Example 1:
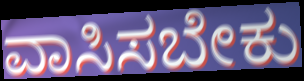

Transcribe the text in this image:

ವಾಸಿಸಬೇಕು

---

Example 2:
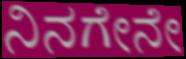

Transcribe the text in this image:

ನಿನಗೇನೇ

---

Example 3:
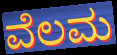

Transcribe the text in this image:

ವೆಲಮ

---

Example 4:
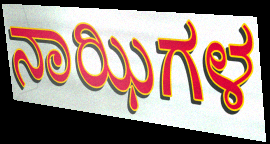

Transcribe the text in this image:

ನಾಝಿಗಳ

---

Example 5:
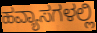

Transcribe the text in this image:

ಹವ್ಯಾಸಗಳಲ್ಲಿ